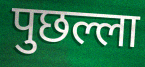
पुछल्ला